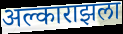
अल्काराझला